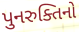
પુનરુક્તિનો